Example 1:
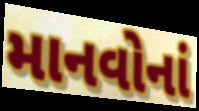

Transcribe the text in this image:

માનવોનાં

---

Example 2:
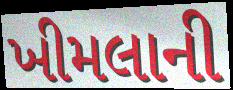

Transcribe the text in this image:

ખીમલાની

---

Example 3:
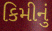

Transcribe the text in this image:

કિમીનું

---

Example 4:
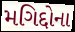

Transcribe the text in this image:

મગિદ્દોના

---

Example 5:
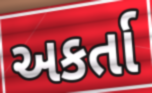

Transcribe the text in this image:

અકર્તા